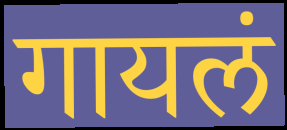
गायलं